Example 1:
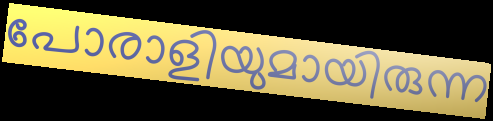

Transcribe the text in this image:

പോരാളിയുമായിരുന്ന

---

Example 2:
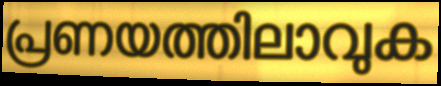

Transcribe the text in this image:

പ്രണയത്തിലാവുക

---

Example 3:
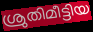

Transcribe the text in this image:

ശ്രുതിമീട്ടിയ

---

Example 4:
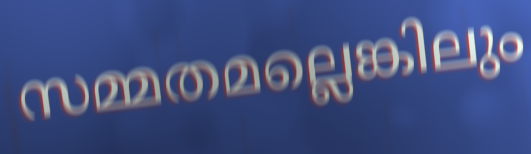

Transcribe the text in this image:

സമ്മതമല്ലെങ്കിലും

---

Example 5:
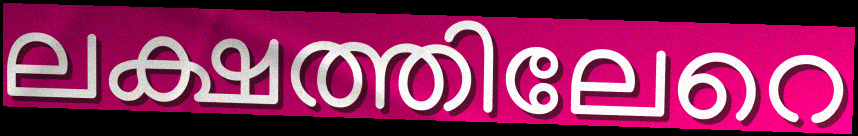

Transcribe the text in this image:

ലക്ഷത്തിലേറെ